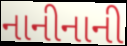
નાનીનાની